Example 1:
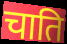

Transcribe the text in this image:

चाति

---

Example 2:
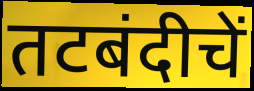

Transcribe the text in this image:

तटबंदीचें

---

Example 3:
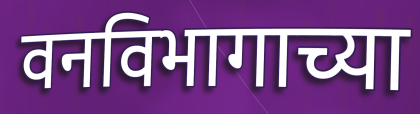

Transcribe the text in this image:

वनविभागाच्या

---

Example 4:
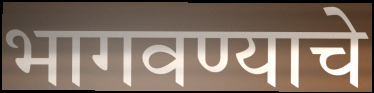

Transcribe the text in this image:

भागवण्याचे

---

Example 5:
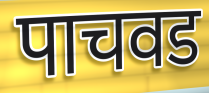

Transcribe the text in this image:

पाचवड